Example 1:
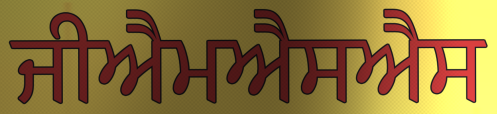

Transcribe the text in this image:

ਜੀਐਮਐਸਐਸ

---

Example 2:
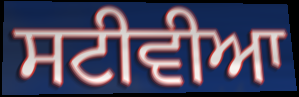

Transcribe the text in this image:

ਸਟੀਵੀਆ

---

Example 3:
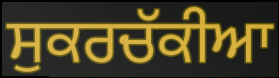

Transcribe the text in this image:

ਸੁਕਰਚੱਕੀਆ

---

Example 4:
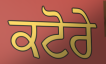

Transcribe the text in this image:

ਕਟੋਰੇ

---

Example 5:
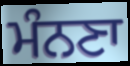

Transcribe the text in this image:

ਮੰਨਣਾ